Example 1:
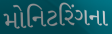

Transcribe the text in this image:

મોનિટરિંગના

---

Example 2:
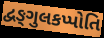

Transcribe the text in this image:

દ્વઙ્ગુલકપ્પોતિ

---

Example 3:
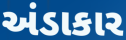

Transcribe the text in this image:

અંડાકાર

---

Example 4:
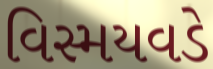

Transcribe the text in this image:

વિસ્મયવડે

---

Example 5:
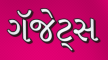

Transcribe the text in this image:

ગૅજેટ્સ